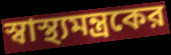
স্বাস্থ্যমন্ত্রকের